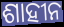
ଶାହୀନ